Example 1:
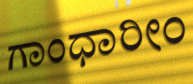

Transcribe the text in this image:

ಗಾಂಧಾರೀಂ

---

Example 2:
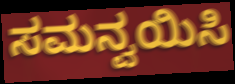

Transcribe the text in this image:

ಸಮನ್ವಯಿಸಿ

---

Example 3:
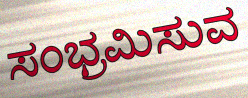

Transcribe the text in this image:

ಸಂಭ್ರಮಿಸುವ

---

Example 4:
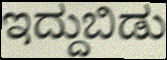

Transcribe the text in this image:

ಇದ್ದುಬಿಡು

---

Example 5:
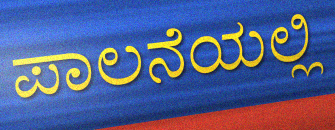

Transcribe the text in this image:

ಪಾಲನೆಯಲ್ಲಿ